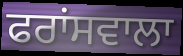
ਫਰਾਂਸਵਾਲਾ